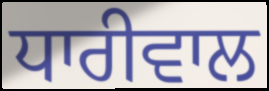
ਧਾਰੀਵਾਲ